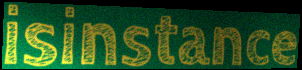
isinstance